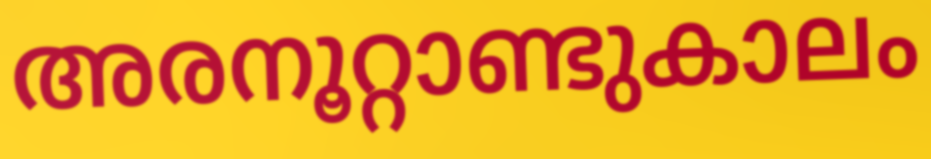
അരനൂറ്റാണ്ടുകാലം